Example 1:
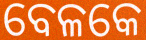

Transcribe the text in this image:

ବେଳକେ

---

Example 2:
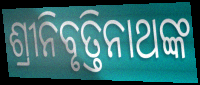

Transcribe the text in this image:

ଶ୍ରୀନିବୃତ୍ତିନାଥଙ୍କ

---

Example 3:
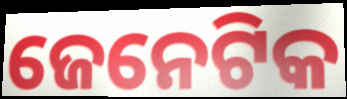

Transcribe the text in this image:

ଜେନେଟିକ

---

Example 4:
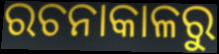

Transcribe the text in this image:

ରଚନାକାଳରୁ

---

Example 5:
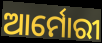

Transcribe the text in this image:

ଆର୍ମୋରୀ